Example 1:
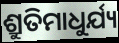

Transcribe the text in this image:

ଶ୍ରୁତିମାଧୁର୍ଯ୍ୟ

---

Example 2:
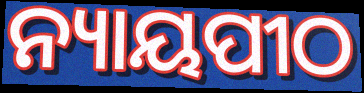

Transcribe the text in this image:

ନ୍ୟାୟପୀଠ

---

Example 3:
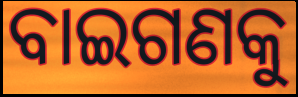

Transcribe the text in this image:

ବାଇଗଣକୁ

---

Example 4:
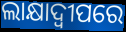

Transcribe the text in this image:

ଲାକ୍ଷାଦ୍ୱୀପରେ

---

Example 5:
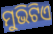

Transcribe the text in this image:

ମୁଭିଟିଏ